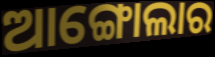
ଆଙ୍ଗୋଲାର